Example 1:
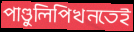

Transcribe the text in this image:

পাণ্ডুলিপিখনতেই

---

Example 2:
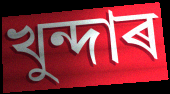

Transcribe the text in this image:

খুন্দাৰ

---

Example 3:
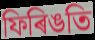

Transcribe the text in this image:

ফিৰিঙতি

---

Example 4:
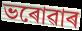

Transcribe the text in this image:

ভৰোৱাৰ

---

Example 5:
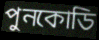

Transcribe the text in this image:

পুনকোডি